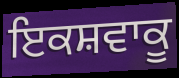
ਇਕਸ਼ਵਾਕੂ